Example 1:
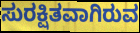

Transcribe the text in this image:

ಸುರಕ್ಷಿತವಾಗಿರುವ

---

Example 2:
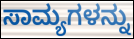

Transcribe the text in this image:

ಸಾಮ್ಯಗಳನ್ನು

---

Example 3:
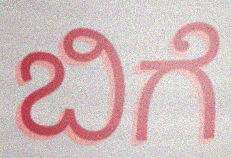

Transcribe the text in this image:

ಬಿಗೆ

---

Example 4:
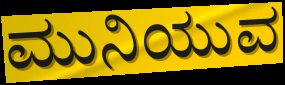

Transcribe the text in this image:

ಮುನಿಯುವ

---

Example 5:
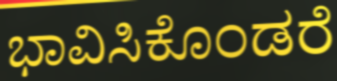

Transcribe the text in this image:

ಭಾವಿಸಿಕೊಂಡರೆ